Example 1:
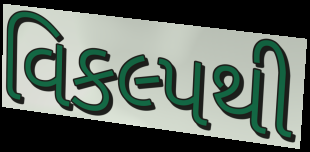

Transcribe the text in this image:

વિકલ્પથી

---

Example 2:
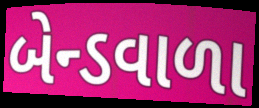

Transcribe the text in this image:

બેન્ડવાળા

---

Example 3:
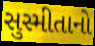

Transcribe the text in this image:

સુસ્મીતાનો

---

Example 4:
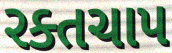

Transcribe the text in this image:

રક્તચાપ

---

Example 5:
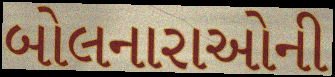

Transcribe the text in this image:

બોલનારાઓની